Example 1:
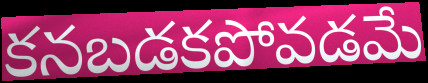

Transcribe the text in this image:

కనబడకపోవడమే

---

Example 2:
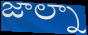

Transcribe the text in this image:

జాల్నా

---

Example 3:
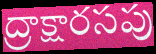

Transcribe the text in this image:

ద్రాక్షారసపు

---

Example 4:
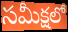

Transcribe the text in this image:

సమీక్షలో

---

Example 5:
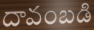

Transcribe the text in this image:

దావంబడి